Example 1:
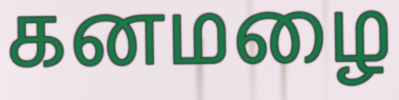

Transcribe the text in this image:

கனமழை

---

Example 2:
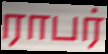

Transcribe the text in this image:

ராபர்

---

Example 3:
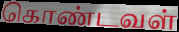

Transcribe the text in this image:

கொண்டவள்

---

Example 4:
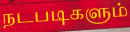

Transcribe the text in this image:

நடபடிகளும்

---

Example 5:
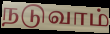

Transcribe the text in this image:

நடுவாம்